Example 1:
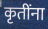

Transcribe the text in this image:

कृतींना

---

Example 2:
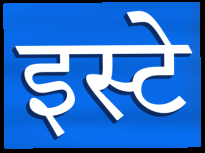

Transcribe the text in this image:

इस्टे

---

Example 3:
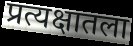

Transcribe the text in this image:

प्रत्यक्षातला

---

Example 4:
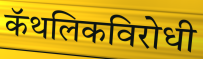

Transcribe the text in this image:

कॅथलिकविरोधी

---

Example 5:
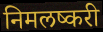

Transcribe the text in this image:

निमलष्करी